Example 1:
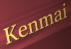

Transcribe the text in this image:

Kenmai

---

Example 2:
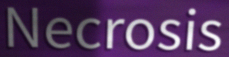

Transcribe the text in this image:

Necrosis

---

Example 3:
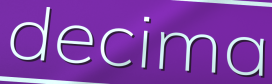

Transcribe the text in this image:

decima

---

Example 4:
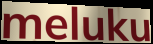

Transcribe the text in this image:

meluku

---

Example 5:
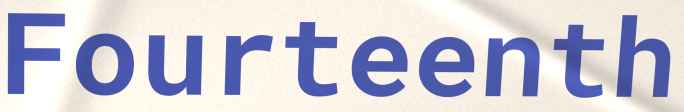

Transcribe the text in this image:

Fourteenth